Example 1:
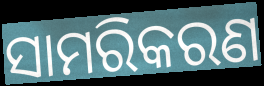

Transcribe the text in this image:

ସାମରିକରଣ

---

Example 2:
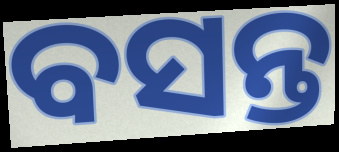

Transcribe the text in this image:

ବସନ୍ତ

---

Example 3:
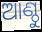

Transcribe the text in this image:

ଆଣ୍ଠୁ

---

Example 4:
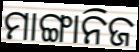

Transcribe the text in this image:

ମାଙ୍ଗାନିଜ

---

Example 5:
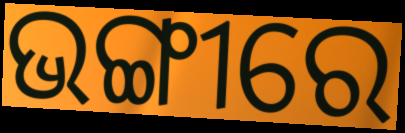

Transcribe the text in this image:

ଭଙ୍ଗୀରେ